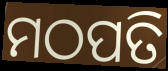
ମଠପତି